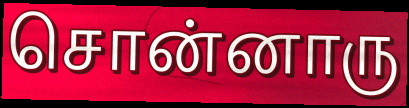
சொன்னாரு